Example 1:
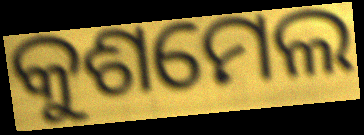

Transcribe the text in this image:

କୁଶମେଲ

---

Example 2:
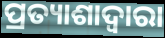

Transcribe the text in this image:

ପ୍ରତ୍ୟାଶାଦ୍ୱାରା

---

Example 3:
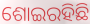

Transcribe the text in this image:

ଶୋଇରହିଛି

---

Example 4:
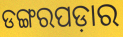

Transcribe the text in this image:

ଡଙ୍ଗରପଡ଼ାର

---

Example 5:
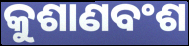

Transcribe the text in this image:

କୁଶାଣବଂଶ